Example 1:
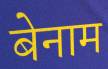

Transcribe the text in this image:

बेनाम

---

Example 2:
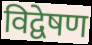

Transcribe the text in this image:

विद्वेषण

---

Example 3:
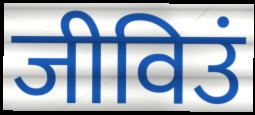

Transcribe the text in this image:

जीविउं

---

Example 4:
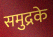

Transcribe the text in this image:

समुद्रके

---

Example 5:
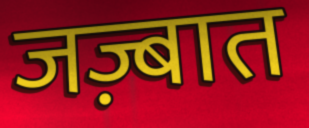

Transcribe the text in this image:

जज्ब़ात